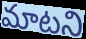
మాటని